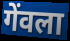
गेंवला